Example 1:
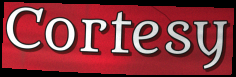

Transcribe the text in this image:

Cortesy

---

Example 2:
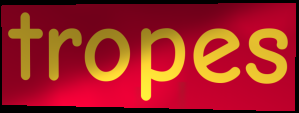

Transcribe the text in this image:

tropes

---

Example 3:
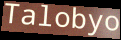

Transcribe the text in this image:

Talobyo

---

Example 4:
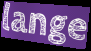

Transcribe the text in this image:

lange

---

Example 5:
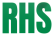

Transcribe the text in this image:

RHS